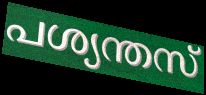
പശ്യന്തസ്